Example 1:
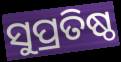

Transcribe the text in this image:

ସୁପ୍ରତିଷ୍ଠ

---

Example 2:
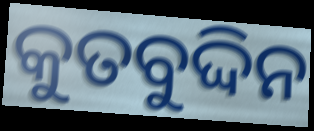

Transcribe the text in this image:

କୁତବୁଦ୍ଦିନ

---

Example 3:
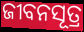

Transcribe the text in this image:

ଜୀବନସୂତ୍ର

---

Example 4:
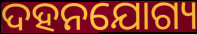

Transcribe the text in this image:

ଦହନଯୋଗ୍ୟ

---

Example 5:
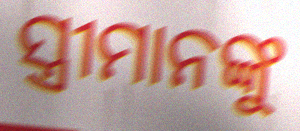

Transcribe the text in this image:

ସ୍ତ୍ରୀମାନଙ୍କୁ